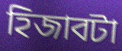
হিজাবটা